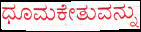
ಧೂಮಕೇತುವನ್ನು